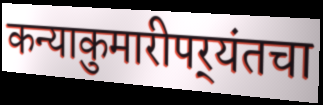
कन्याकुमारीपर्यंतचा